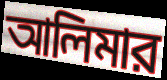
আলিমার